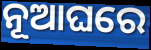
ନୂଆଘରେ